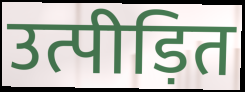
उत्पीड़ित